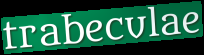
trabeculae